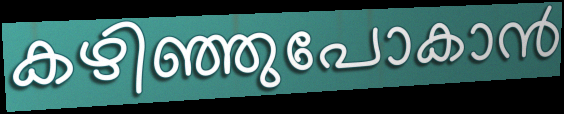
കഴിഞ്ഞുപോകാൻ